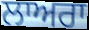
ਲਾਅਰਾ